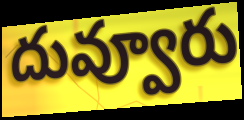
దువ్వూరు